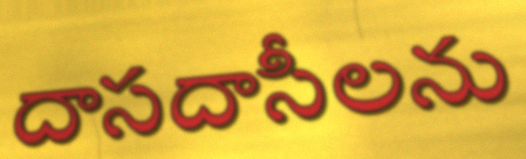
దాసదాసీలను